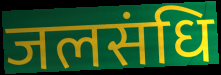
जलसंधि